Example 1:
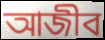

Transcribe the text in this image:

আজীব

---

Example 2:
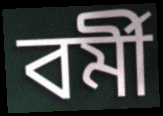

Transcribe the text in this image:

বর্মী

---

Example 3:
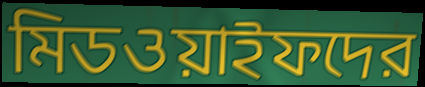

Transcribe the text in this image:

মিডওয়াইফদের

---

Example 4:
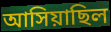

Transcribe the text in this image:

আসিয়াছিল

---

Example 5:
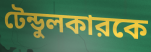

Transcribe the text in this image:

টেন্ডুলকারকে